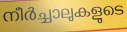
നീർച്ചാലുകളുടെ